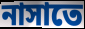
নাসাতে